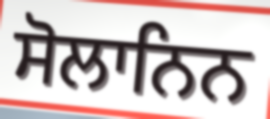
ਸੋਲਾਨਿਨ